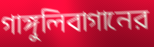
গাঙ্গুলিবাগানের